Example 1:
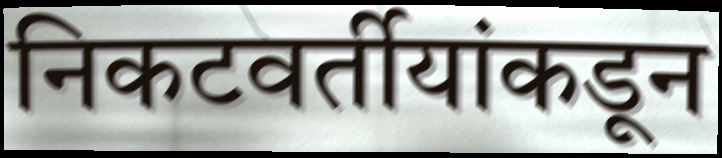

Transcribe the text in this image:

निकटवर्तीयांकडून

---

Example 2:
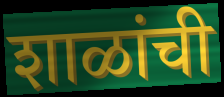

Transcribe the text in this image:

शाळांची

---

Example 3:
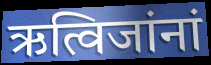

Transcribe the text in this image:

ऋत्विजांनां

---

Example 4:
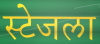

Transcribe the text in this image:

स्टेजला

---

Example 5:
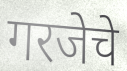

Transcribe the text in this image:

गरजेचे